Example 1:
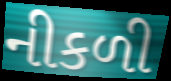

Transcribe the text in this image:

નીકળી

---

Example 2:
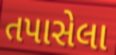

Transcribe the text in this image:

તપાસેલા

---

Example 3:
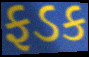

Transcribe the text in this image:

ફડક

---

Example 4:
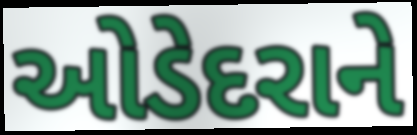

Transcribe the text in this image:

ઓડેદરાને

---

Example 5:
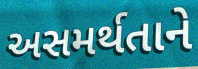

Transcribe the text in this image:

અસમર્થતાને